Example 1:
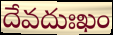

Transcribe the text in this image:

దేవదుఃఖం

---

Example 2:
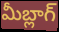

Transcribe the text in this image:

మీబ్లాగ్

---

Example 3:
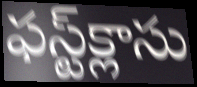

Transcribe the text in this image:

ఫస్ట్‌క్లాసు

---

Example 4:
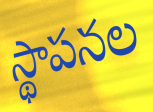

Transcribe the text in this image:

స్థాపనల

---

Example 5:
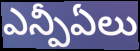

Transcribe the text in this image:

ఎన్పీఏలు